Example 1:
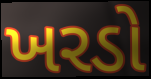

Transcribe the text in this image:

ખરડો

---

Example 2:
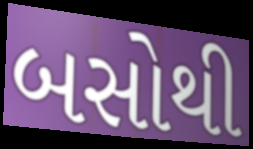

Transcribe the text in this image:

બસોથી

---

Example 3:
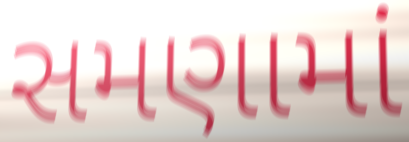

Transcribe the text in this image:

સમણામાં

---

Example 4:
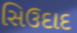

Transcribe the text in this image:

સિઉદાદ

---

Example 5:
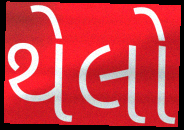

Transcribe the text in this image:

થેલો